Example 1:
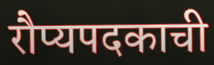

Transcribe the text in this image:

रौप्यपदकाची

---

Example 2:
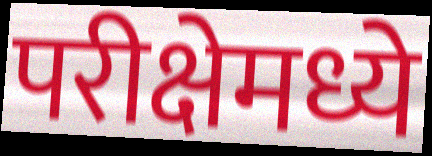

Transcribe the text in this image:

परीक्षेमध्ये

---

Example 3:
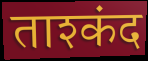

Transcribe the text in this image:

ताश्कंद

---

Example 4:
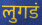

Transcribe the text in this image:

लुगडं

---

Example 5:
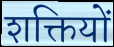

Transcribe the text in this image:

शक्तियों